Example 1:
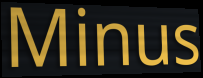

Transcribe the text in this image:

Minus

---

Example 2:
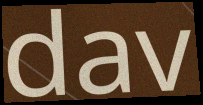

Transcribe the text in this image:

dav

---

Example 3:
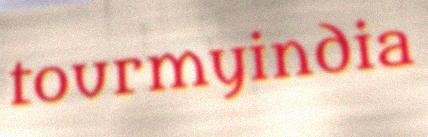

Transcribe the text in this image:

tourmyindia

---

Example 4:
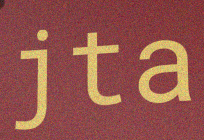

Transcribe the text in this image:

jta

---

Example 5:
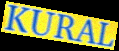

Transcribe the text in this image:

KURAL